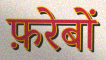
फ़रेबों